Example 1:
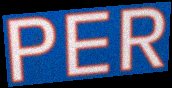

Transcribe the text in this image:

PER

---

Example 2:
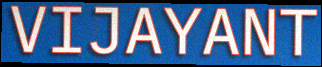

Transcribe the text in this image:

VIJAYANT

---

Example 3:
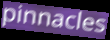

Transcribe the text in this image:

pinnacles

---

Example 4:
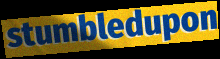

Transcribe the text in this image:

stumbledupon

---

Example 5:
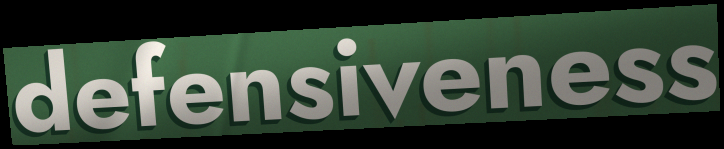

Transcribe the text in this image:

defensiveness